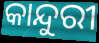
କାନ୍ଦୁରୀ